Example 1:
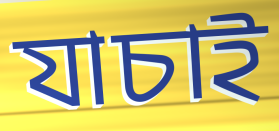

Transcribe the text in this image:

যাচাই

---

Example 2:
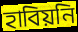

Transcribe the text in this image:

হাবিয়নি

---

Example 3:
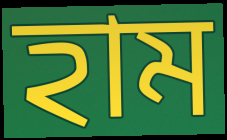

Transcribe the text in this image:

হাম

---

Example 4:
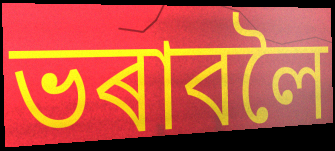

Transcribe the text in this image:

ভৰাবলৈ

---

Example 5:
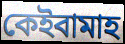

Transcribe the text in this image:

কেইবামাহ